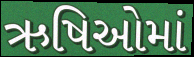
ઋષિઓમાં